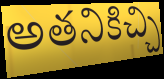
అతనికిచ్చి